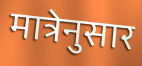
मात्रेनुसार